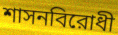
শাসনবিরোধী